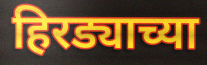
हिरड्याच्या